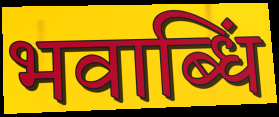
भवाब्धिं